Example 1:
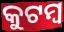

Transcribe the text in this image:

କୁଟମ୍ୱ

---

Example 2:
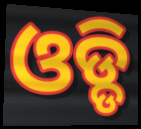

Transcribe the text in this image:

ଓଡ୍ଡି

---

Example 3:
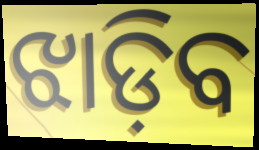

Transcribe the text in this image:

ଝାଡ଼ିବ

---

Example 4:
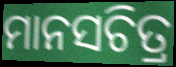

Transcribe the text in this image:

ମାନସଚିତ୍ର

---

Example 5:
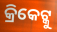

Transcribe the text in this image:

କ୍ରିକେଟ୍କୁ